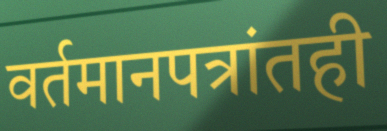
वर्तमानपत्रांतही